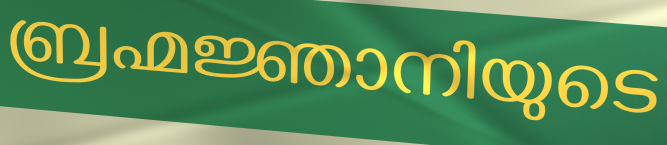
ബ്രഹ്മജ്ഞാനിയുടെ